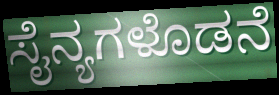
ಸೈನ್ಯಗಳೊಡನೆ